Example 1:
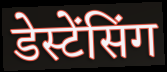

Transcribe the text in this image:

डेस्टेंसिंग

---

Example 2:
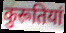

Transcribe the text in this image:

कुरूतियां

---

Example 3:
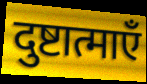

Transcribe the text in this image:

दुष्टात्माएँ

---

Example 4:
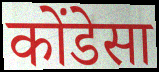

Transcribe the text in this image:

कोंडेसा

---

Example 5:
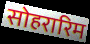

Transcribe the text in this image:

सोहरारिम